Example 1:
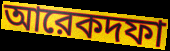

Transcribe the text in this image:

আরেকদফা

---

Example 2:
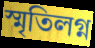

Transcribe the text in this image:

স্মৃতিলগ্ন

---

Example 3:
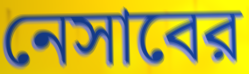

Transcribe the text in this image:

নেসাবের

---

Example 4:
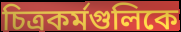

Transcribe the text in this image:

চিত্রকর্মগুলিকে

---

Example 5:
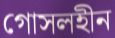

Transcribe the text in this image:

গোসলহীন